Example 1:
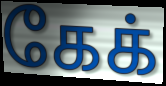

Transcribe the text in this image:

கேக்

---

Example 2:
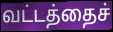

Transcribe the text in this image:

வட்டத்தைச்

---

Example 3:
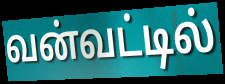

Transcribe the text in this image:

வன்வட்டில்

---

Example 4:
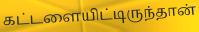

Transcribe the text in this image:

கட்டளையிட்டிருந்தான்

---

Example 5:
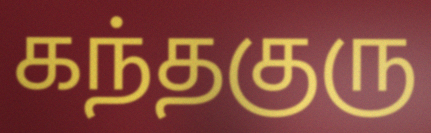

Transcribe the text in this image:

கந்தகுரு